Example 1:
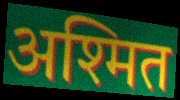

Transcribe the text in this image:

अश्मित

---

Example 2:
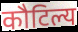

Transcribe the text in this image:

कौटिल्य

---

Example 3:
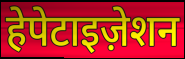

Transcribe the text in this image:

हेपेटाइज़ेशन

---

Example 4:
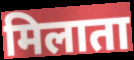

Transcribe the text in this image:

मिलाता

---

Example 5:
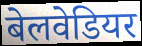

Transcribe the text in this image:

बेलवेडियर